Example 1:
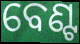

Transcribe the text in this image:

ବେଣ୍ଟ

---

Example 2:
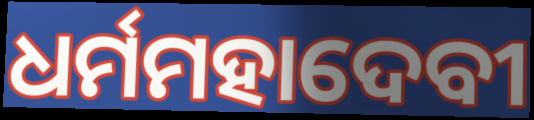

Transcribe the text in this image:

ଧର୍ମମହାଦେବୀ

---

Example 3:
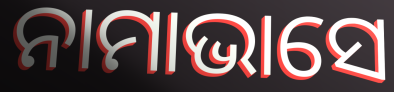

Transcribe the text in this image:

ନାମାଭାସେ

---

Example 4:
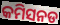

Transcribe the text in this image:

କମିସନଡ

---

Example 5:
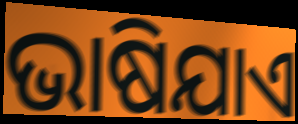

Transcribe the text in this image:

ଭାଷିଯାଏ